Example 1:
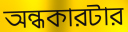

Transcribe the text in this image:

অন্ধকারটার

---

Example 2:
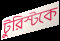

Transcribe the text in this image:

টুরিস্টকে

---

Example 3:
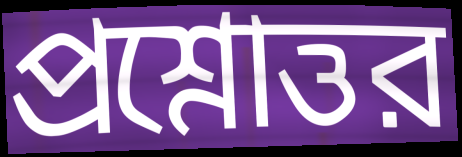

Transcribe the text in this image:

প্রশ্নোত্তর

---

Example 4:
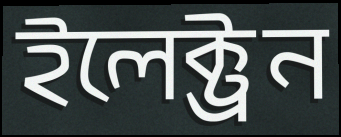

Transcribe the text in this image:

ইলেক্ট্রন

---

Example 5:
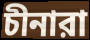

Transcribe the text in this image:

চীনারা